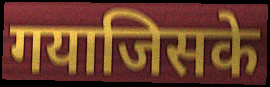
गयाजिसके